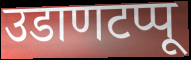
उडाणटप्पू